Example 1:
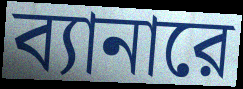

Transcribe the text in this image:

ব্যানারে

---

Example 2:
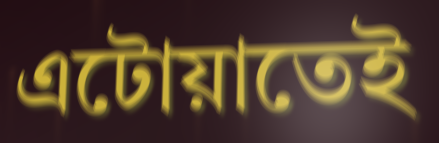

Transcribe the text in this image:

এটোয়াতেই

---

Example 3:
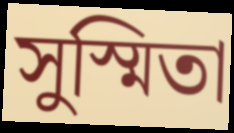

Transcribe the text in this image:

সুস্মিতা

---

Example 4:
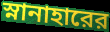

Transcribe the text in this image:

স্নানাহারের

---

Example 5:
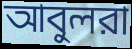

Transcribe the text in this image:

আবুলরা